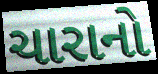
ચારાનો